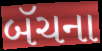
બૅચના